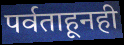
पर्वताहूनही